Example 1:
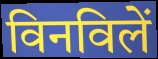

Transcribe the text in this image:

विनविलें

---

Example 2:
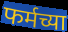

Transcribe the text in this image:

फर्मच्या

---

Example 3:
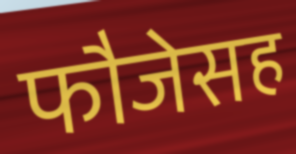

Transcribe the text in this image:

फौजेसह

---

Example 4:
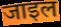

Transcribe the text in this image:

जाइल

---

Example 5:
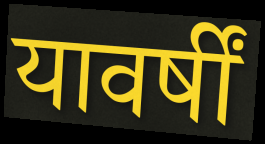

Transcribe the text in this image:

यावर्षीं